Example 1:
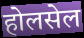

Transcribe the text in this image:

होलसेल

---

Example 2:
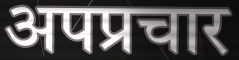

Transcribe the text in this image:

अपप्रचार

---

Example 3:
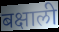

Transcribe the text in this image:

बक्षाली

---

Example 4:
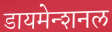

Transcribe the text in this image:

डायमेन्शनल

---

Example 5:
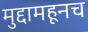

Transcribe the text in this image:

मुद्दामहूनच